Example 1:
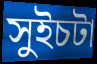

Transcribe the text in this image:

সুইচটা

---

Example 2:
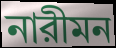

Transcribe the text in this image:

নারীমন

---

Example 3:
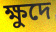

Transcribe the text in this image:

ক্ষুদে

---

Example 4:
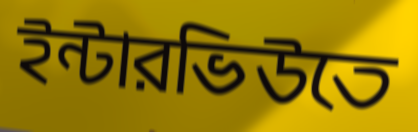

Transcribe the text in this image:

ইন্টারভিউতে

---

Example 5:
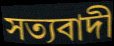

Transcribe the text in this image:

সত্যবাদী